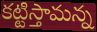
కట్టిస్తామన్న